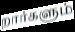
றார்களும்